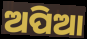
ଅପିଆ